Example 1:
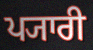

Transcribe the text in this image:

ਪ੍ਯਾਰੀ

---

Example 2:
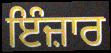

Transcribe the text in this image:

ਇੰਜ਼ਾਰ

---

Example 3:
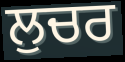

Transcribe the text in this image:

ਲੁਚਰ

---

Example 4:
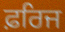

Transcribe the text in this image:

ਫ਼ਰਿਜ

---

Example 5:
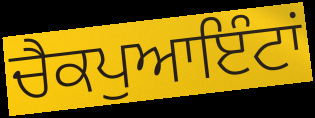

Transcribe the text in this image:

ਚੈਕਪੁਆਇੰਟਾਂ